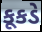
કૂકડે